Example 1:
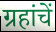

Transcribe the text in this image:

ग्रहांचें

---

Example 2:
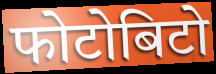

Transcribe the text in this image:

फोटोबिटो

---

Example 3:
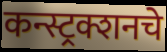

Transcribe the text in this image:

कन्स्ट्रक्शनचे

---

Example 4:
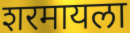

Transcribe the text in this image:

शरमायला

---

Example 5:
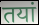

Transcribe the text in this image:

तयां